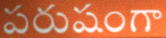
పరుషంగా